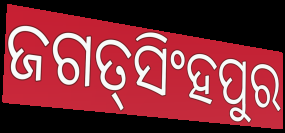
ଜଗତ୍‌ସିଂହପୁର